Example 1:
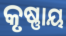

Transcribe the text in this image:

କୃଷ୍ଣାୟ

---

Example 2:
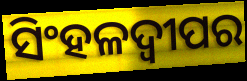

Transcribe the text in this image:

ସିଂହଳଦ୍ୱୀପର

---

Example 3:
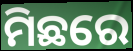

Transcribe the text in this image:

ମିଛରେ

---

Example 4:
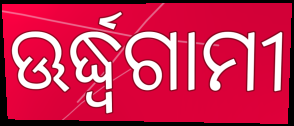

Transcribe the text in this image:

ଊର୍ଦ୍ଧ୍ଵଗାମୀ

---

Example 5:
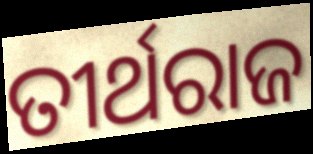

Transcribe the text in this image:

ତୀର୍ଥରାଜ